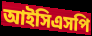
আইসিএসপি